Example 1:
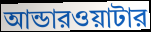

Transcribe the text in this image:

আন্ডারওয়াটার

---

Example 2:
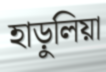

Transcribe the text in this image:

হাড়ুলিয়া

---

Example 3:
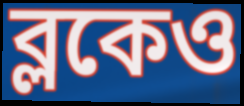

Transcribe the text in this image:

ব্লকেও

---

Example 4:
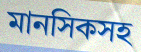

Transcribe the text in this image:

মানসিকসহ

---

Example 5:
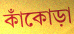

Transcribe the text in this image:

কাঁকোড়া